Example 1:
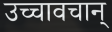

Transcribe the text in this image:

उच्चावचान्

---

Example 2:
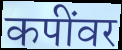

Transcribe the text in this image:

कपींवर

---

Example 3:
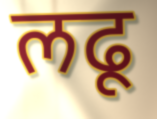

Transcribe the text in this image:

लढू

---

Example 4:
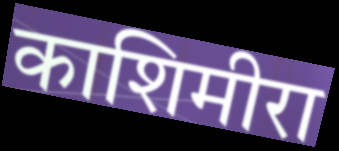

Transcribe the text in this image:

काशिमीरा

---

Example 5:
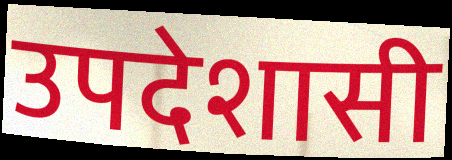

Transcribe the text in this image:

उपदेशासी